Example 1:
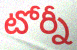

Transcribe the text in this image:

టోర్నీ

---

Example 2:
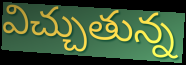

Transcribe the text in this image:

విచ్చుతున్న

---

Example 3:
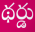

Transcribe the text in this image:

థర్డు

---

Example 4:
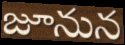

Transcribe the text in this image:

జూనున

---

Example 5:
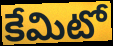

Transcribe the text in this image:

కేమిటో